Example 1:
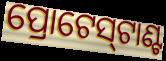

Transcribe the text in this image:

ପ୍ରୋଟେସ୍‌ଟାଣ୍ଟ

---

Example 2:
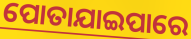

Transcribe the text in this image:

ପୋତାଯାଇପାରେ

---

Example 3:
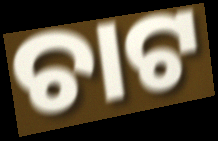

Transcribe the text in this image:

ଚାଟ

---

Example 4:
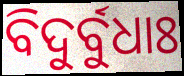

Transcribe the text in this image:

ବିଦୁର୍ବୁଧାଃ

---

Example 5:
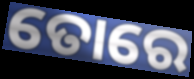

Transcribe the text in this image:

ତୋରେ